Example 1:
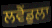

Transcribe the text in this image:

ਲਵੈਂਡੁਲਾ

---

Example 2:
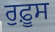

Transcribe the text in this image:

ਰੁਫ਼ੂਸ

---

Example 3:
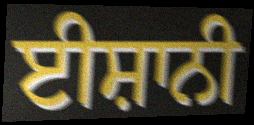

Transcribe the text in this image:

ਈਸ਼ਾਨੀ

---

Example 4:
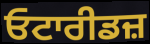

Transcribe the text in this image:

ਓਟਾਰੀਡਜ਼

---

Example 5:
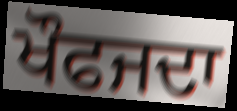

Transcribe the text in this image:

ਖੌਫਜਦਾ